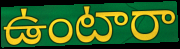
ఉంటారా